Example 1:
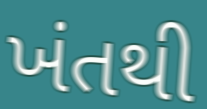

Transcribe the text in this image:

ખંતથી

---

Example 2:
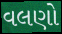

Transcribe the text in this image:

વલણો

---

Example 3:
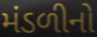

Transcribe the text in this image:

મંડળીનો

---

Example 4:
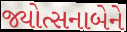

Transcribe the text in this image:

જ્યોત્સનાબેને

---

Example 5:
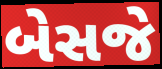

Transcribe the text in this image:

બેસજે